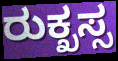
ರುಕ್ಖಸ್ಸ